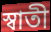
স্বাতী